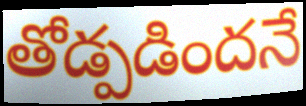
తోడ్పడిందనే